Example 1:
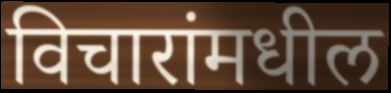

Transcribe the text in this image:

विचारांमधील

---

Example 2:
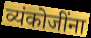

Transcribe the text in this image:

व्यंकोजींना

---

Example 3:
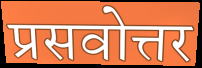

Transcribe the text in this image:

प्रसवोत्तर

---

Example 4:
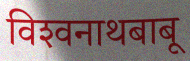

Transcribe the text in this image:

विश्‍वनाथबाबू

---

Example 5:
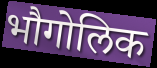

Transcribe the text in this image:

भौगोलिक